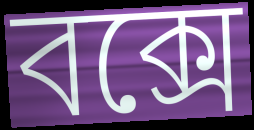
বক্সে